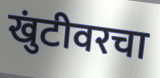
खुंटीवरचा